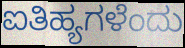
ಐತಿಹ್ಯಗಳೆಂದು